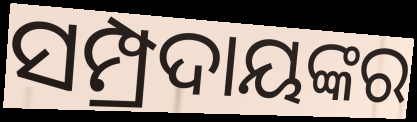
ସମ୍ପ୍ରଦାୟଙ୍କର